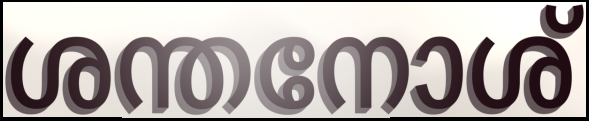
ശന്തനോശ്